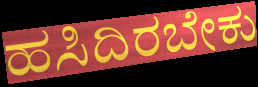
ಹಸಿದಿರಬೇಕು